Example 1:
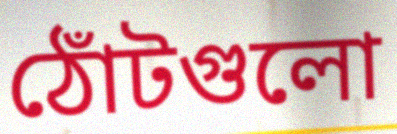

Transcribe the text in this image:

ঠোঁটগুলো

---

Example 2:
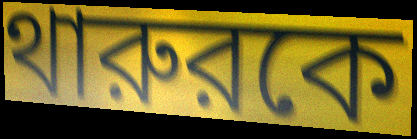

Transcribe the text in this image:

থারুরকে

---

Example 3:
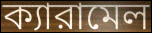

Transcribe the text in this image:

ক্যারামেল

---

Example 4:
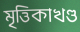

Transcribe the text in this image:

মৃত্তিকাখণ্ড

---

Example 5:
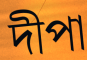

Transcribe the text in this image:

দীপা